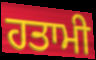
ਹਤਾਮੀ